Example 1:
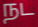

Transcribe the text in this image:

நட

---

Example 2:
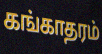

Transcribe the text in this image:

கங்காதரம்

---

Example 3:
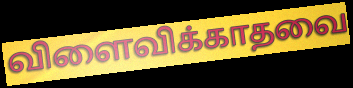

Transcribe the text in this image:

விளைவிக்காதவை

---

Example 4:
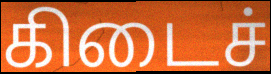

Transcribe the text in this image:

கிடைச்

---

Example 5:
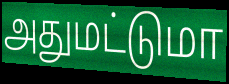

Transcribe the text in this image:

அதுமட்டுமா